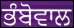
ਭੰਬੋਵਾਲ